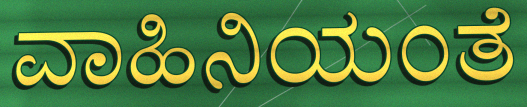
ವಾಹಿನಿಯಂತೆ